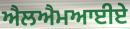
ਐਲਐਮਆਈਏ